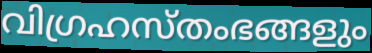
വിഗ്രഹസ്തംഭങ്ങളും